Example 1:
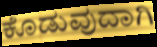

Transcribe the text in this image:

ಕೊಡುವುದಾಗಿ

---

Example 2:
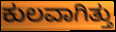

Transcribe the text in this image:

ಕುಲವಾಗಿತ್ತು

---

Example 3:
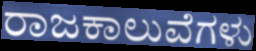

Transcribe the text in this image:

ರಾಜಕಾಲುವೆಗಳು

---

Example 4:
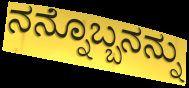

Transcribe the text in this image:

ನನ್ನೊಬ್ಬನನ್ನು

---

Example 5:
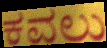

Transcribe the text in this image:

ಕವಲು